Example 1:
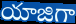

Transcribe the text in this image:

యాజిగా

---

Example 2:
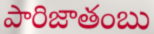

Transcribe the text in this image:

పారిజాతంబు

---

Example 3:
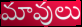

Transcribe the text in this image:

మావులు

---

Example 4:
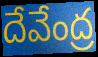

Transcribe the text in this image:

దేవేంద్ర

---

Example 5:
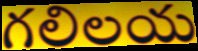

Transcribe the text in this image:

గలిలయ